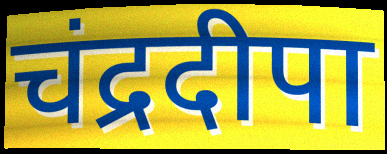
चंद्रदीपा